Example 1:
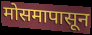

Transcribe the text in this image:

मोसमापासून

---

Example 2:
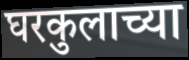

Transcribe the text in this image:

घरकुलाच्या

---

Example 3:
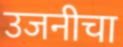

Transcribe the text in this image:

उजनीचा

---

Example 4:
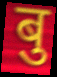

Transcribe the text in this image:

बु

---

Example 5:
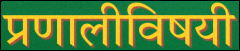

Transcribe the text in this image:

प्रणालीविषयी